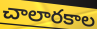
చాలారకాల